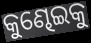
କୁଣ୍ଢେଇକୁ